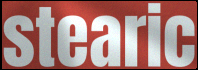
stearic